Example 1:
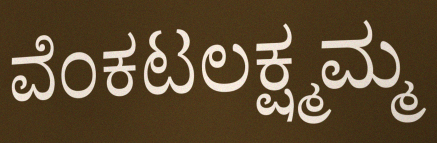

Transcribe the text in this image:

ವೆಂಕಟಲಕ್ಷ್ಮಮ್ಮ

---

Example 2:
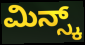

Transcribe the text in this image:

ಮಿನ್ಸ್ಕ್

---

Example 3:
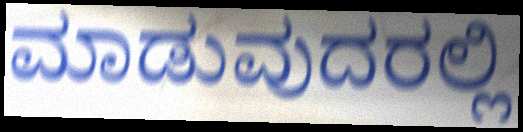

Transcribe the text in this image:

ಮಾಡುವುದರಲ್ಲಿ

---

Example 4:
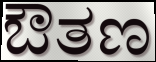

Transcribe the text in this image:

ಔತಣ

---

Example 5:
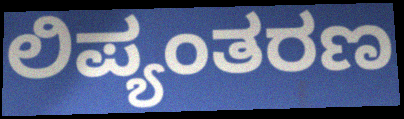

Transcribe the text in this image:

ಲಿಪ್ಯಂತರಣ